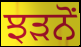
ਝੜਨੋਂ